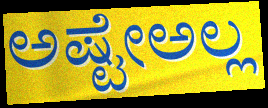
ಅಷ್ಟೇಅಲ್ಲ